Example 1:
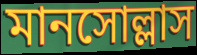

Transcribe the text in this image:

মানসোল্লাস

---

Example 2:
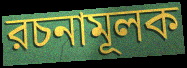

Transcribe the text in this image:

রচনামূলক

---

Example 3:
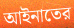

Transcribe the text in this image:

আইনাতের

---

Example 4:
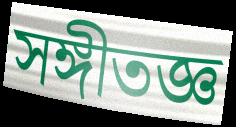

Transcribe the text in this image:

সঙ্গীতজ্ঞ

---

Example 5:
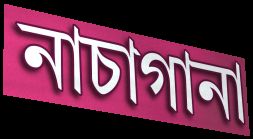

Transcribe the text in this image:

নাচাগানা